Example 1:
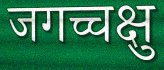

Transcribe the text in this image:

जगच्चक्षु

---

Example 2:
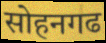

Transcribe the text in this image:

सोहनगढ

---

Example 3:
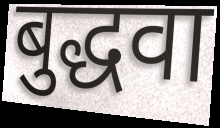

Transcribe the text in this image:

बुद्धवा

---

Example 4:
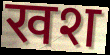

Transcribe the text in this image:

खश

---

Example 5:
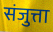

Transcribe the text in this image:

संजुत्ता